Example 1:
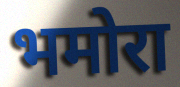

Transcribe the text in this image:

भमोरा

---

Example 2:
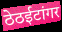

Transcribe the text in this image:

ठेठईटांगर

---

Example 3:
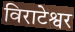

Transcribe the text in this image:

विराटेश्वर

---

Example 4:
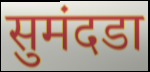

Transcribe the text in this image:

सुमंदडा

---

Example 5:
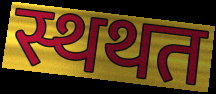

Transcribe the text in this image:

स्थथत